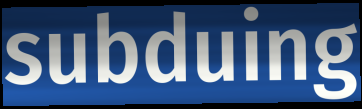
subduing